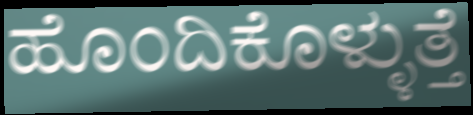
ಹೊಂದಿಕೊಳ್ಳುತ್ತೆ